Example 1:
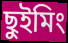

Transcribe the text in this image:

ছুইমিং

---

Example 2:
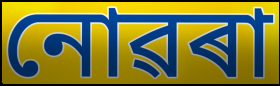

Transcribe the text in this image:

নোৱৰা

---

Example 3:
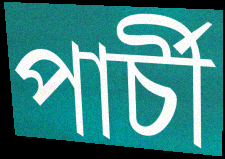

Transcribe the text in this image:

পাৰ্চী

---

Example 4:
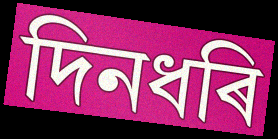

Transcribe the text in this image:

দিনধৰি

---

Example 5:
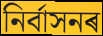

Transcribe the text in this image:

নিৰ্বাসনৰ